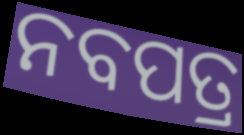
ନବପତ୍ର